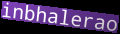
inbhalerao